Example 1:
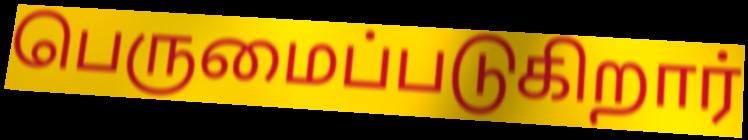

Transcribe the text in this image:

பெருமைப்படுகிறார்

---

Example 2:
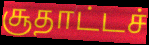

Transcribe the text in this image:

சூதாட்டச்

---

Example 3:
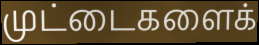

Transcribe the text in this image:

முட்டைகளைக்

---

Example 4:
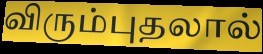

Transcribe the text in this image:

விரும்புதலால்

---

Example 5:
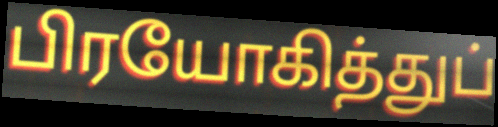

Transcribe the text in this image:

பிரயோகித்துப்